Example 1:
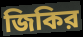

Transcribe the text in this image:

জিকির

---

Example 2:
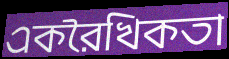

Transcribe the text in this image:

একরৈখিকতা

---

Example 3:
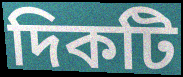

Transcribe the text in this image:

দিকটি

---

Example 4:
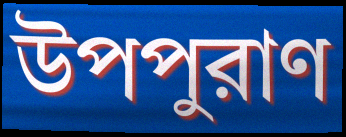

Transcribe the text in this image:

উপপুরাণ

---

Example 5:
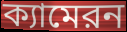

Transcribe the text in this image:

ক্যামেরন